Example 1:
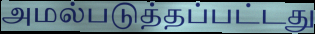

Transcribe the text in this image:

அமல்படுத்தப்பட்டது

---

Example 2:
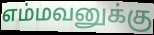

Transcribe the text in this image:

எம்மவனுக்கு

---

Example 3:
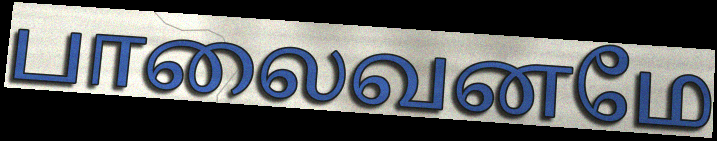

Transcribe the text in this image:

பாலைவனமே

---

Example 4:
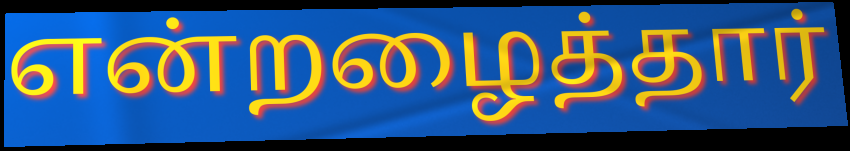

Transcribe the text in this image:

என்றழைத்தார்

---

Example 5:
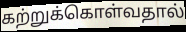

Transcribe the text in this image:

கற்றுக்கொள்வதால்